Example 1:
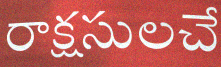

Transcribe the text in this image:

రాక్షసులచే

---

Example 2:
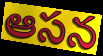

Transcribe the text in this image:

ఆసన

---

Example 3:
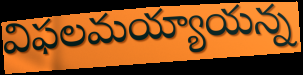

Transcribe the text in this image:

విఫలమయ్యాయన్న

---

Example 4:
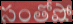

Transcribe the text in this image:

సంతోషో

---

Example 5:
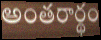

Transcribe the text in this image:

అంతరార్థం